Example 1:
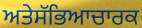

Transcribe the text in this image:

ਅਤੇਸੱਭਿਆਚਾਰਕ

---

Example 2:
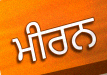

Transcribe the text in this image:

ਮੀਰਨ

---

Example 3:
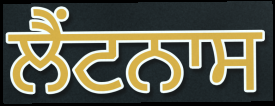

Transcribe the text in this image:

ਲੈਂਟਨਾਸ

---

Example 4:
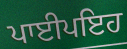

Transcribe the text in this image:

ਪਾਈਪਇਹ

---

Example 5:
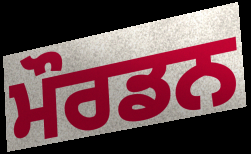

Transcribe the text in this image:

ਮੌਰਡਨ